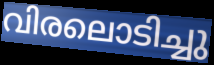
വിരലൊടിച്ചു